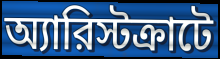
অ্যারিস্টক্রাটে